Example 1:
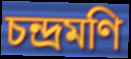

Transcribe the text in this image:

চন্দ্রমণি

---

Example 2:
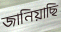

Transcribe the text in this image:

জানিয়াছি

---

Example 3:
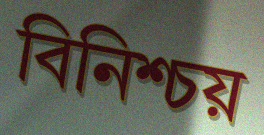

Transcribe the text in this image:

বিনিশ্চয়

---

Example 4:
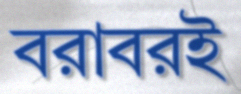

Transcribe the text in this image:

বরাবরই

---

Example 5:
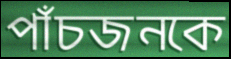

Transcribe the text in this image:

পাঁচজনকে